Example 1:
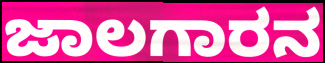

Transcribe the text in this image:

ಜಾಲಗಾರನ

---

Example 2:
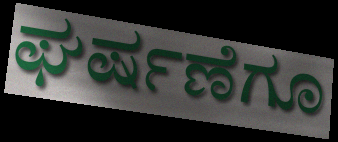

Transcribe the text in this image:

ಘರ್ಷಣೆಗೂ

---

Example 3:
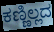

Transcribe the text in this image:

ಕಣ್ಣಿಲ್ಲದ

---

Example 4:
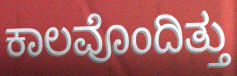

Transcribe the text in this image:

ಕಾಲವೊಂದಿತ್ತು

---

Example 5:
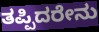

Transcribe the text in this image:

ತಪ್ಪಿದರೇನು